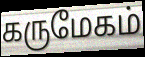
கருமேகம்